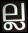
ല്ല